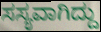
ಸಸ್ಯವಾಗಿದ್ದು